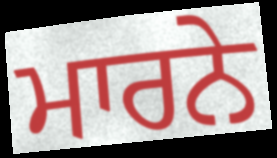
ਮਾਰਨੇ